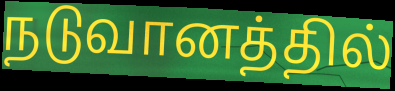
நடுவானத்தில்